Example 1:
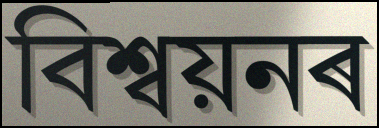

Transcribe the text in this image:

বিশ্বয়নৰ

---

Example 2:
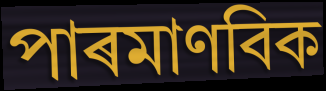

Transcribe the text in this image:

পাৰমাণবিক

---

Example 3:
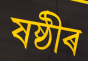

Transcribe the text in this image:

ষষ্ঠীৰ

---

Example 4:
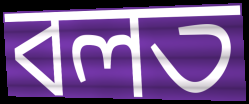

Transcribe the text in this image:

বলত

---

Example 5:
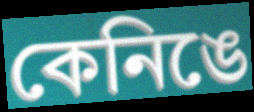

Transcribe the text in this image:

কেনিঙে